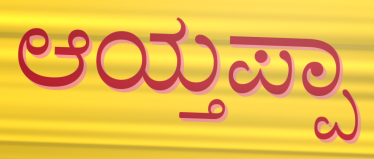
ಆಯ್ತಪ್ಪಾ